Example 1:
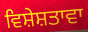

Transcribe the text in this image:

ਵਿਸ਼ੇਸ਼ਤਾਵਾ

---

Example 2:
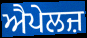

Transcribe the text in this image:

ਐਪੇਲਜ਼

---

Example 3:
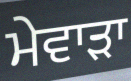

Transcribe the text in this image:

ਮੇਵਾੜਾ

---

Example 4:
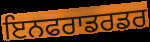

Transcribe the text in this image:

ਇਨਫਰਾਡਰਡਰ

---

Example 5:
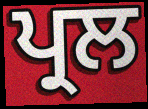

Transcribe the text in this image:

ਪ੍ਰਲ